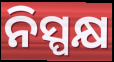
ନିସ୍ପକ୍ଷ